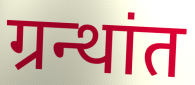
ग्रन्थांत